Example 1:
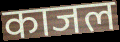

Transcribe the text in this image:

काजल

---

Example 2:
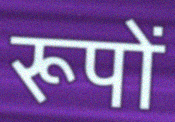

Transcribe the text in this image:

रूपों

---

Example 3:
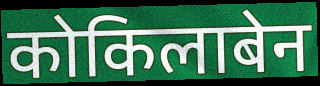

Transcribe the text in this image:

कोकिलाबेन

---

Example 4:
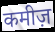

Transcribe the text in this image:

कमीज़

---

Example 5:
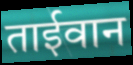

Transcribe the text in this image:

ताईवान